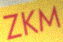
ZKM